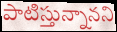
పాటిస్తున్నానని